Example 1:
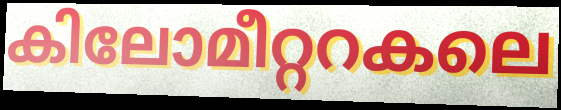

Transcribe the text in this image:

കിലോമീറ്ററകലെ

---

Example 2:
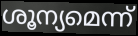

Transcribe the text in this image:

ശൂന്യമെന്ന്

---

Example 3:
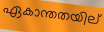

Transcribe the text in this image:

ഏകാന്തതയില്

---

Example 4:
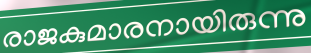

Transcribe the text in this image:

രാജകുമാരനായിരുന്നു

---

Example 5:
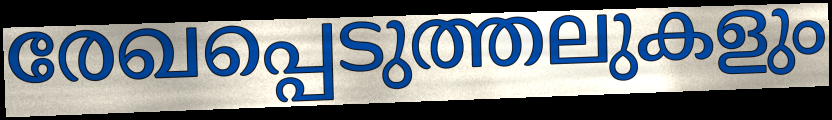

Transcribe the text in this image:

രേഖപ്പെടുത്തലുകളും